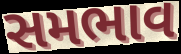
સમભાવ